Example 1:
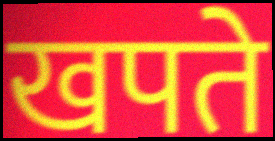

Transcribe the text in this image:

खपते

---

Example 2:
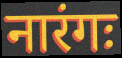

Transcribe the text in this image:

नारंगः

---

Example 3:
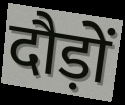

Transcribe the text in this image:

दौड़ों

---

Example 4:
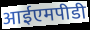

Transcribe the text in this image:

आईएमपीडी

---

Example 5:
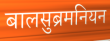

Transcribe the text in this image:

बालसुब्रमनियन